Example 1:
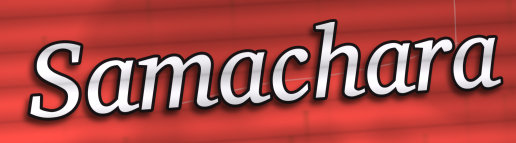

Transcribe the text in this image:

Samachara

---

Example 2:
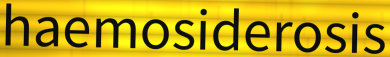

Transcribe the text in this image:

haemosiderosis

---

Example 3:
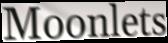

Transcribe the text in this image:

Moonlets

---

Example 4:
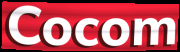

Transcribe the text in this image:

Cocom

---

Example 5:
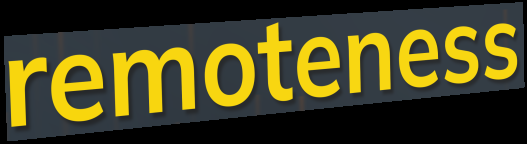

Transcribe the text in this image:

remoteness